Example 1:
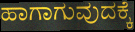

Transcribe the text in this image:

ಹಾಗಾಗುವುದಕ್ಕೆ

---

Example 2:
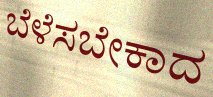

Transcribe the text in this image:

ಬೆಳೆಸಬೇಕಾದ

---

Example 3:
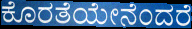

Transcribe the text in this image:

ಕೊರತೆಯೇನೆಂದರೆ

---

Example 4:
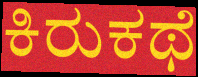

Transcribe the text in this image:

ಕಿರುಕಥೆ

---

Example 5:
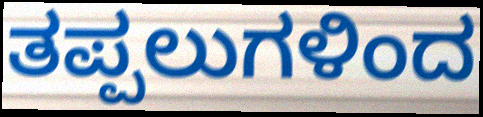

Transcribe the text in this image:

ತಪ್ಪಲುಗಳಿಂದ